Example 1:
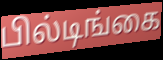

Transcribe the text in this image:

பில்டிங்கை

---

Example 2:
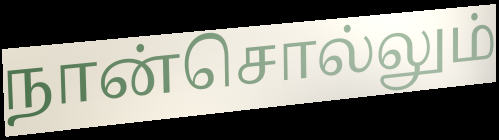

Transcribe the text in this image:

நான்சொல்லும்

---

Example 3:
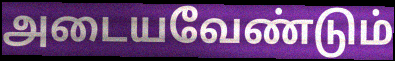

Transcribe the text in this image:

அடையவேண்டும்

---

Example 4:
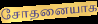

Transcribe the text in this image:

சோதனையாக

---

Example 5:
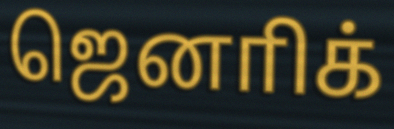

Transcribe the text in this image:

ஜெனரிக்